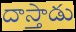
దాస్తాడు